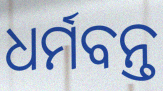
ଧର୍ମବନ୍ତ